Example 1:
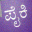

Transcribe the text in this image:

ಪೈಕಿ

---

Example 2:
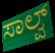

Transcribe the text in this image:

ಸಾಲ್ವ್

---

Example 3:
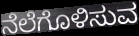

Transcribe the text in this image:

ನೆಲೆಗೊಳಿಸುವ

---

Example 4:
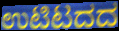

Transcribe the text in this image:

ಉಟಿಟದದ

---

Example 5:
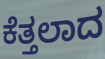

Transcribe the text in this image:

ಕೆತ್ತಲಾದ